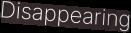
Disappearing